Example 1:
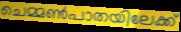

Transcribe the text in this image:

ചെമ്മൺപാതയിലേക്ക്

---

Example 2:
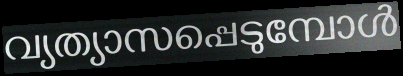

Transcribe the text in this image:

വ്യത്യാസപ്പെടുമ്പോൾ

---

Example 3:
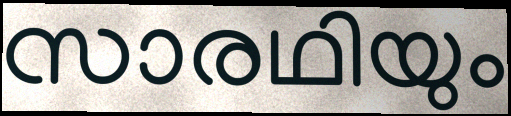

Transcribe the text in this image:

സാരഥിയും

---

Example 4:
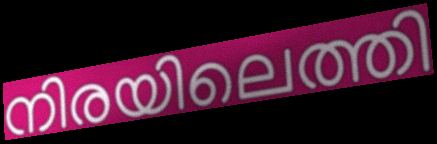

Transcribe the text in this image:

നിരയിലെത്തി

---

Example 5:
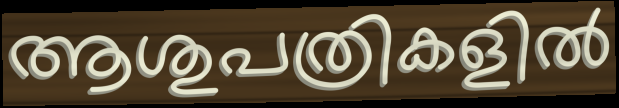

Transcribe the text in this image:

ആശുപത്രികളിൽ